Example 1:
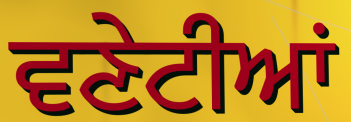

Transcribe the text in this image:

ਵਣੇਟੀਆਂ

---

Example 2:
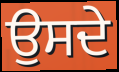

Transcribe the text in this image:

ਉਸਦੇ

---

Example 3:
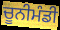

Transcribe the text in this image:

ਚੂਨੀਮੰਡੀ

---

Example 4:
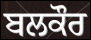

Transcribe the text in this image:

ਬਲਕੌਰ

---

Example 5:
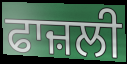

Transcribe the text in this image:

ਫਾਜ਼ਲੀ